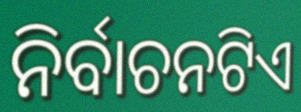
ନିର୍ବାଚନଟିଏ